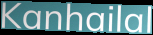
Kanhailal